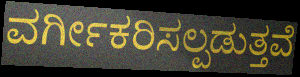
ವರ್ಗೀಕರಿಸಲ್ಪಡುತ್ತವೆ